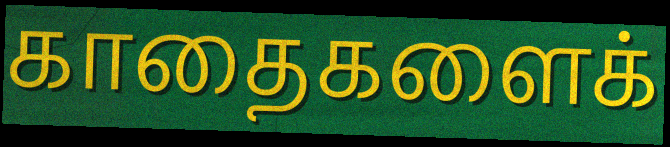
காதைகளைக்